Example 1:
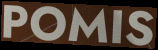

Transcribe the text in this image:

POMIS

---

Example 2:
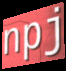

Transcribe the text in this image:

npj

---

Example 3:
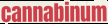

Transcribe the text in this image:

cannabinum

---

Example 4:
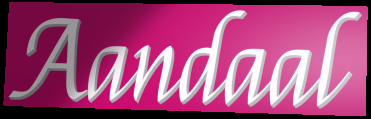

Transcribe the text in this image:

Aandaal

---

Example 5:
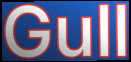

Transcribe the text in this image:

Gull